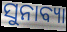
ସୁନାବ୍ୟା